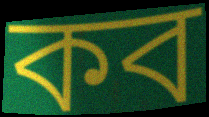
কব